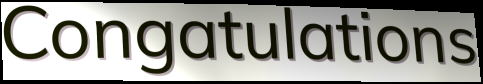
Congatulations